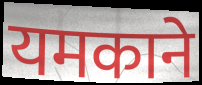
यमकाने